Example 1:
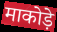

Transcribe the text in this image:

माकोड़े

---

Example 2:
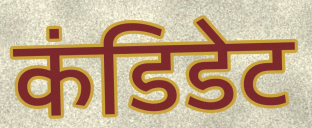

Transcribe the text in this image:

कंडिडेट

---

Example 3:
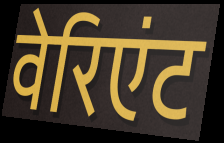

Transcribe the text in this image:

वेरिएंट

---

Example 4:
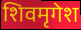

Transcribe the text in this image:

शिवमृगेश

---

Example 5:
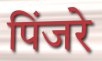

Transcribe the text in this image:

पिंजरे